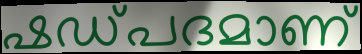
ഷഡ്പദമാണ്